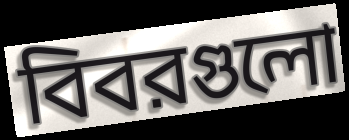
বিবরগুলো